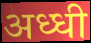
अध्धी